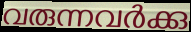
വരുന്നവർക്കു